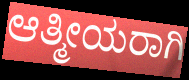
ಆತ್ಮೀಯರಾಗಿ